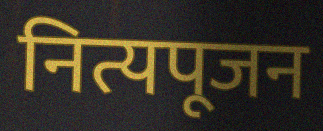
नित्यपूजन